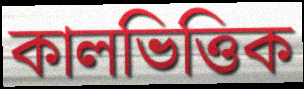
কালভিত্তিক